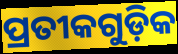
ପ୍ରତୀକଗୁଡ଼ିକ